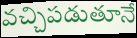
వచ్చిపడుతూనే